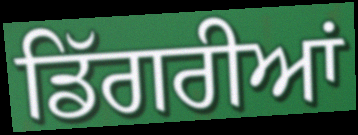
ਡਿੱਗਰੀਆਂ